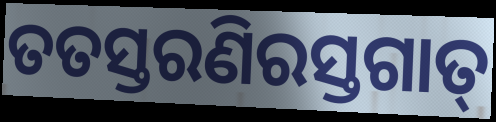
ତତସ୍ତରଣିରସ୍ତଗାତ୍